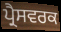
ਪ੍ਰੈਸਵਰਕ